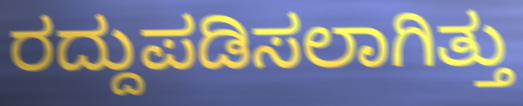
ರದ್ದುಪಡಿಸಲಾಗಿತ್ತು